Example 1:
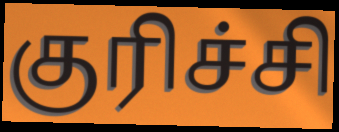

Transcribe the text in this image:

குரிச்சி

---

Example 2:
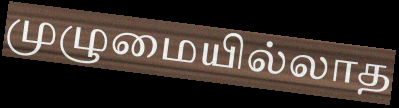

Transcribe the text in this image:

முழுமையில்லாத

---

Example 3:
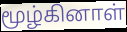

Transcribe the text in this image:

மூழ்கினாள்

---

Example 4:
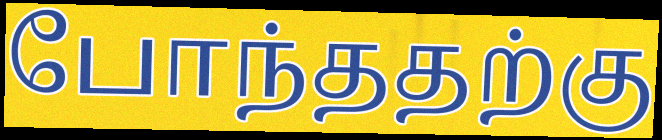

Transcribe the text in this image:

போந்ததற்கு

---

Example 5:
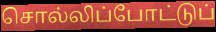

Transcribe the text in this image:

சொல்லிப்போட்டுப்